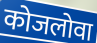
कोजलोवा